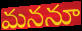
మననూ